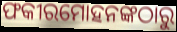
ଫକୀରମୋହନଙ୍କଠାରୁ